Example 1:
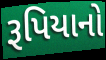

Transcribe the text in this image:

રૂપિયાનો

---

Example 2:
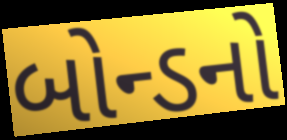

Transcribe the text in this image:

બોન્ડનો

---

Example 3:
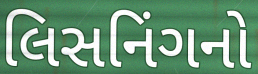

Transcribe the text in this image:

લિસનિંગનો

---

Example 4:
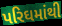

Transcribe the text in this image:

પરિઘમાંથી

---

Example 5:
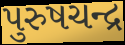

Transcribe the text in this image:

પુરુષચન્દ્ર